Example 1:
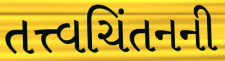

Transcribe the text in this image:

તત્ત્વચિંતનની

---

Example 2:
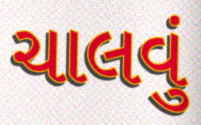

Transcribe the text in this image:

ચાલવું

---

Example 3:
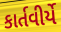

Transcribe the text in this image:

કાર્તવીર્યે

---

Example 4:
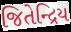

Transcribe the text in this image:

જિતેન્દ્રિય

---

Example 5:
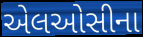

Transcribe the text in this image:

એલઓસીના